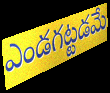
ఎండగట్టడమే